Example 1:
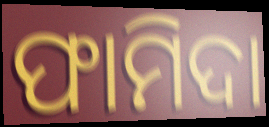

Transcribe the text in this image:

ଫାମିଦା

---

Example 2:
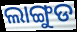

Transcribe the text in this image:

ଲାଙ୍ଗୁଡ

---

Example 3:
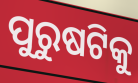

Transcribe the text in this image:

ପୁରୁଷଟିକୁ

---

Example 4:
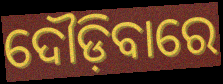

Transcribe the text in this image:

ଦୌଡ଼ିବାରେ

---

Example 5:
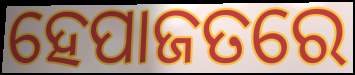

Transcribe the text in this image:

ହେପାଜତରେ